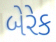
બેરેક